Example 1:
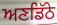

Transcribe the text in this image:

ਅਣਡਿੱਠੇ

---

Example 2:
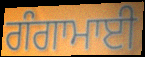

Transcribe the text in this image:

ਗੰਗਾਮਾਈ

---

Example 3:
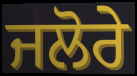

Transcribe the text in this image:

ਜਲੋਰੇ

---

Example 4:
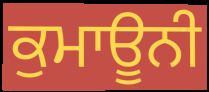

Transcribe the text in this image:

ਕੁਮਾਊਨੀ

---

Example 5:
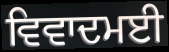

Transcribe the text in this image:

ਵਿਵਾਦਮਈ